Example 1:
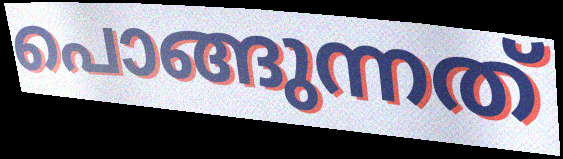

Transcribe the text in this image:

പൊങ്ങുന്നത്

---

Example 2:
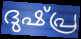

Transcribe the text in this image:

ദുഷ്‌പ്ര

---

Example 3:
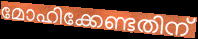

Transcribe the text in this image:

മോഹിക്കേണ്ടതിന്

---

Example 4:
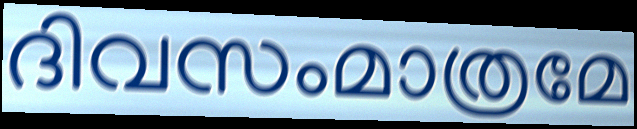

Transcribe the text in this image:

ദിവസംമാത്രമേ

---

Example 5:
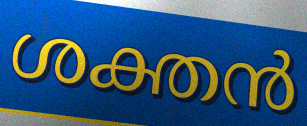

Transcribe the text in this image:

ശക്തൻ